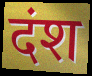
दंश